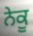
ਨੇਕੂ